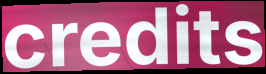
credits